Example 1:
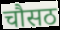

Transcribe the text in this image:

चौसठ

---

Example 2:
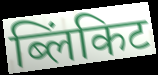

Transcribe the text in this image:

ब्लिंकिट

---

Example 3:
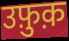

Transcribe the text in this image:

उफ़ुक़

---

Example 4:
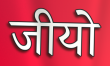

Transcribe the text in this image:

जीयो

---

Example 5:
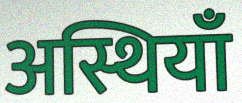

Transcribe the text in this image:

अस्थियाँ